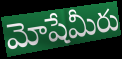
మోషేమీరు